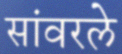
सांवरले